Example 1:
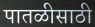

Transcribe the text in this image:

पातळीसाठी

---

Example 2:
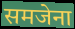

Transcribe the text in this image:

समजेना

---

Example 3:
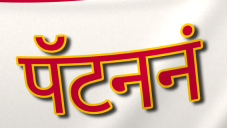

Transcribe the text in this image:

पॅटननं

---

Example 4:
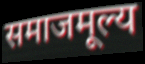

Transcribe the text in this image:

समाजमूल्य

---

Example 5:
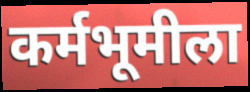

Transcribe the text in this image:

कर्मभूमीला